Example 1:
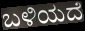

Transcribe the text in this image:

ಬಳಿಯದೆ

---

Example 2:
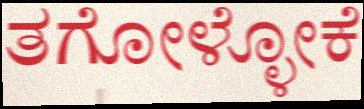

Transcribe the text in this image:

ತಗೋಳ್ಳೋಕೆ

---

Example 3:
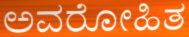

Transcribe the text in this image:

ಅವರೋಹಿತ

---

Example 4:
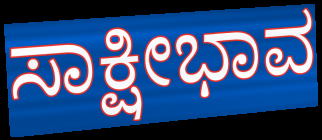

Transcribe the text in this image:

ಸಾಕ್ಷೀಭಾವ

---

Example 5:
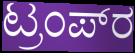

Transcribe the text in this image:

ಟ್ರಂಪ್‍ರ